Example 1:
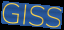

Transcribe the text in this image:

GISS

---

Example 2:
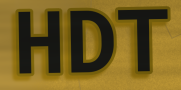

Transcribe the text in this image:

HDT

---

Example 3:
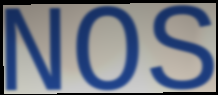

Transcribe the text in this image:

NOS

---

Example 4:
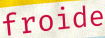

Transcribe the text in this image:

froide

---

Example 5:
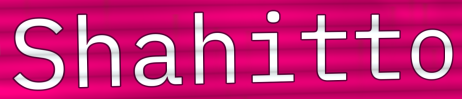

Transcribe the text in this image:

Shahitto